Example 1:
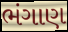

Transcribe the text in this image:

ભંગાણ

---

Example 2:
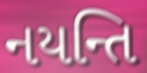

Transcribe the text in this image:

નયન્તિ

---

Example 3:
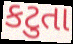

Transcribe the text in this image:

કટુતા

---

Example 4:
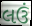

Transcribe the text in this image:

લઉં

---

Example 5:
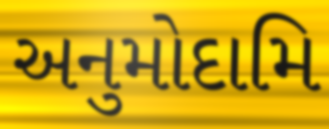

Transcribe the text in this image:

અનુમોદામિ